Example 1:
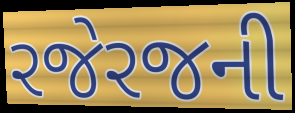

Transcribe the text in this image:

રજેરજની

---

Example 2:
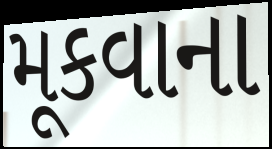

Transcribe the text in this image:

મૂકવાના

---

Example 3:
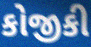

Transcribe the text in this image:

કોજીકી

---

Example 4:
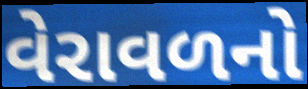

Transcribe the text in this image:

વેરાવળનો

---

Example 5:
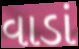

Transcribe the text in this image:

વાડાં